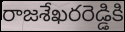
రాజశేఖరరెడ్డికి